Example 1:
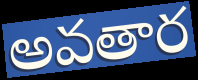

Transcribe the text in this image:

అవతార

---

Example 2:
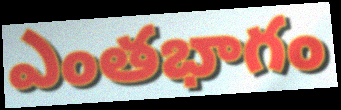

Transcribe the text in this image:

ఎంతభాగం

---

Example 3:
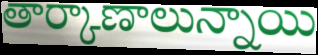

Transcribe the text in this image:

తార్కాణాలున్నాయి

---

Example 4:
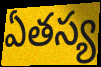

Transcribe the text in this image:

ఏతస్య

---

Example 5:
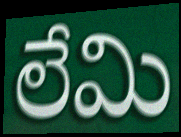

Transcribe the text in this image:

లేమి